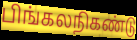
பிங்கலநிகண்டு